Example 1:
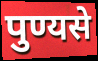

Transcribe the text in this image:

पुण्यसे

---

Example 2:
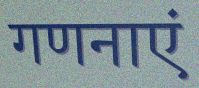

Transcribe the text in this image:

गणनाएं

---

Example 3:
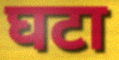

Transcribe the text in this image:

घटा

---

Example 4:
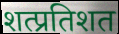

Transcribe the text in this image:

शत्प्रतिशत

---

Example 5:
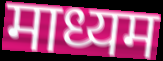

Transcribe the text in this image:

माध्यम